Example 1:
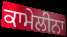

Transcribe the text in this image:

ਕਾਮੇਲੀਨਾ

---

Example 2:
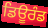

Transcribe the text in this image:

ਡਿਊਰੰਡ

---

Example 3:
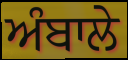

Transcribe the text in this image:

ਅੰਬਾਲੇ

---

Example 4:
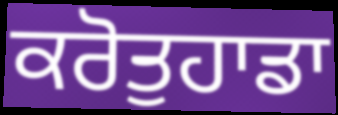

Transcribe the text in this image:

ਕਰੋਤੁਹਾਡਾ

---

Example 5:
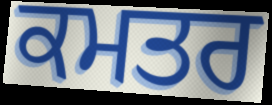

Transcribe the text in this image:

ਕਮਤਰ